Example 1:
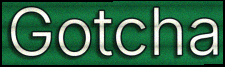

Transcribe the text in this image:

Gotcha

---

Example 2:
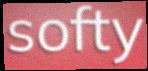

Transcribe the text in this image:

softy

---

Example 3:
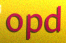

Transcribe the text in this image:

opd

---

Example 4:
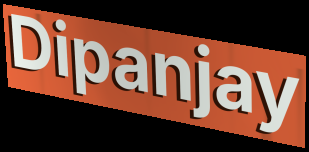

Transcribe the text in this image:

Dipanjay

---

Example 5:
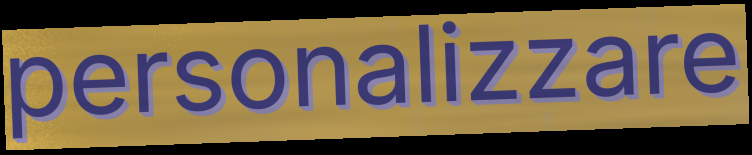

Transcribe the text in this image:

personalizzare